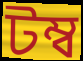
টম্ব